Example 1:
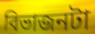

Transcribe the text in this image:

বিভাজনটা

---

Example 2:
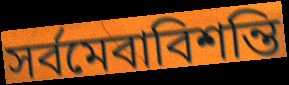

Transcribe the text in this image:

সর্বমেবাবিশন্তি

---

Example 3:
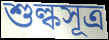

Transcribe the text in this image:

শুল্কসূত্র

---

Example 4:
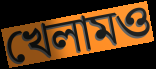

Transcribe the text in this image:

খেলামও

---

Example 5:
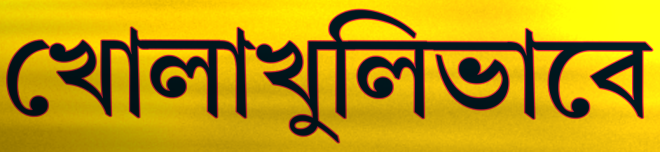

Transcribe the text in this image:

খোলাখুলিভাবে